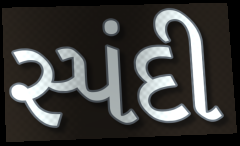
સ્પંદી